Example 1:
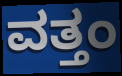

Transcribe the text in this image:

ವತ್ತಂ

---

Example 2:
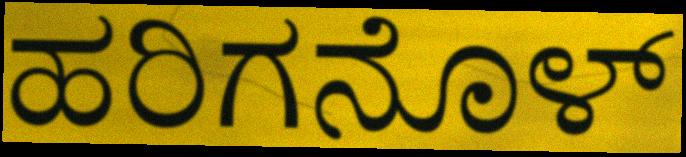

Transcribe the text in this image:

ಹರಿಗನೊಳ್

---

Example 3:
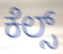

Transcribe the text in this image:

ಕೆಲ್ಸ್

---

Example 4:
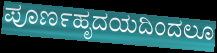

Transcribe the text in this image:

ಪೂರ್ಣಹೃದಯದಿಂದಲೂ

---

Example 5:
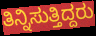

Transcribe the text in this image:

ತಿನ್ನಿಸುತ್ತಿದ್ದರು